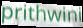
prithwini